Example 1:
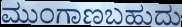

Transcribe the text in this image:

ಮುಂಗಾಣಬಹುದು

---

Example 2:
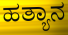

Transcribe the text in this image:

ಹತ್ಯಾನ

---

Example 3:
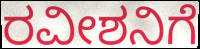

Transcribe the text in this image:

ರವೀಶನಿಗೆ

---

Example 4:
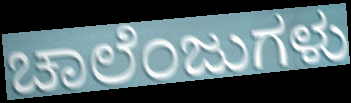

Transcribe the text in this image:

ಚಾಲೆಂಜುಗಳು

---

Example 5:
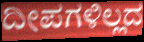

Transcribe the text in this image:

ದೀಪಗಳಿಲ್ಲದ